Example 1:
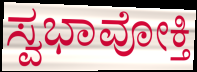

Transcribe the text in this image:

ಸ್ವಭಾವೋಕ್ತಿ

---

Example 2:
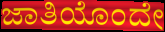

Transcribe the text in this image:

ಜಾತಿಯೊಂದೇ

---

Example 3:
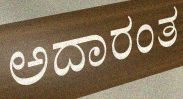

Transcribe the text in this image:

ಅದಾರಂತ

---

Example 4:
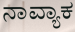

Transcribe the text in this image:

ನಾವ್ಯಾಕ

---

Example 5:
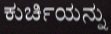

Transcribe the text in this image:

ಕುರ್ಚಿಯನ್ನು